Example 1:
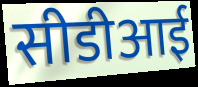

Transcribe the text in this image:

सीडीआई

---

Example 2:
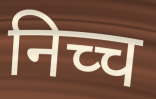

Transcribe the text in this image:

निच्च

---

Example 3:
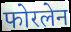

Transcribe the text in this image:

फोरलेन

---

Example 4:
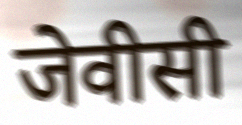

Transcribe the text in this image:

जेवीसी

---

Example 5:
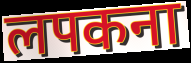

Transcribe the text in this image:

लपकना